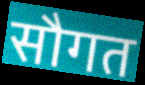
सौगत